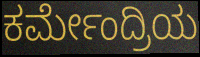
ಕರ್ಮೇಂದ್ರಿಯ